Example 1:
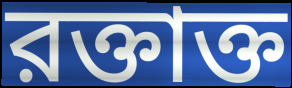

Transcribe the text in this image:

রক্তাক্ত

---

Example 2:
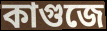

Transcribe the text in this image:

কাগুজে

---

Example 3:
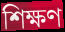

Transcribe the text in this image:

শিক্ষণ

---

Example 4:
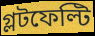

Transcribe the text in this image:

গ্লটফেল্টি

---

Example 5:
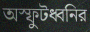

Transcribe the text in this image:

অস্ফুটধ্বনির